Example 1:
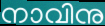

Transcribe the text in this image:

നാവിനു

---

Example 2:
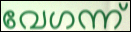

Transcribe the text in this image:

വേഗന്ന്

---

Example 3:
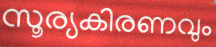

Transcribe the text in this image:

സൂര്യകിരണവും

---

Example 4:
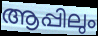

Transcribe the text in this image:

ആപ്പിലും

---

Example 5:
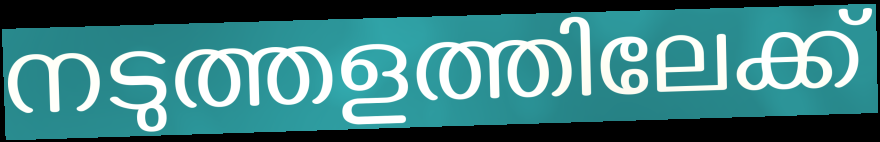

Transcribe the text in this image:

നടുത്തളത്തിലേക്ക്